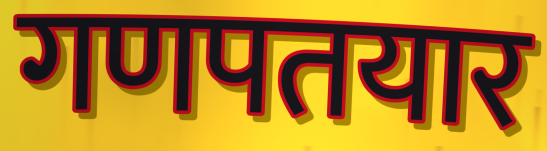
गणपतयार